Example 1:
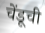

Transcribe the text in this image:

चेंडूची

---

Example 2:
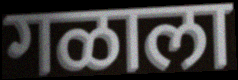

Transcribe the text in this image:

गळाला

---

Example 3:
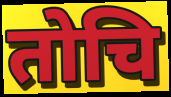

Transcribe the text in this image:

तोचि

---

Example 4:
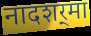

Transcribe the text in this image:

नादशर्मा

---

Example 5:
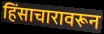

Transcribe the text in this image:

हिंसाचारावरून